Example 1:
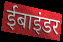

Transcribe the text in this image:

ईबाइंडर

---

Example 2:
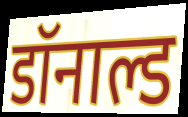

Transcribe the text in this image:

डॉनाल्ड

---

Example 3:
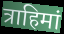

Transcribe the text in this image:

त्राहिमां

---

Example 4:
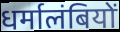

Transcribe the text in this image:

धर्मालंबियों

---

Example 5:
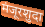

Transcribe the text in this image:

मंजूरशुदा